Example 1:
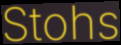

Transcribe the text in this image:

Stohs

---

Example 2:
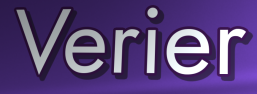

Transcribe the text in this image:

Verier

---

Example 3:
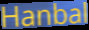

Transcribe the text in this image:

Hanbal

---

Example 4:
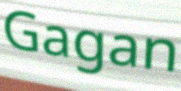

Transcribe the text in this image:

Gagan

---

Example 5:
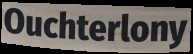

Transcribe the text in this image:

Ouchterlony